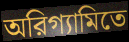
অরিগ্যামিতে